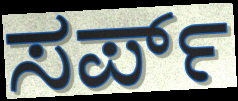
ಸರ್ಪ್